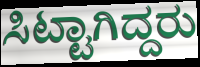
ಸಿಟ್ಟಾಗಿದ್ದರು